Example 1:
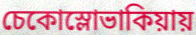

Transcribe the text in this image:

চেকোস্লোভাকিয়ায়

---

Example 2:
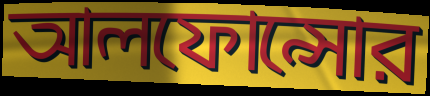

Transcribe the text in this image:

আলফোন্সোর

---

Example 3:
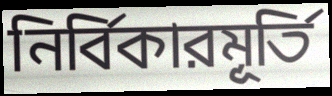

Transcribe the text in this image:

নির্বিকারমূর্তি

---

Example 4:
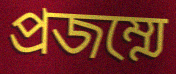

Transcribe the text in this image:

প্রজম্মে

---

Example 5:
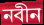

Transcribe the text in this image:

নবীন